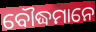
ବୌଦ୍ଧମାନେ